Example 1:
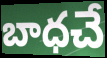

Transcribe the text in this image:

బాధచే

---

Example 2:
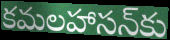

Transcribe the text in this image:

కమలహాసన్‌కు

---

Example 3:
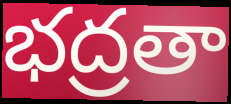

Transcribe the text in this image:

భద్రతా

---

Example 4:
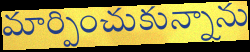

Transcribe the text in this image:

మార్పించుకున్నాను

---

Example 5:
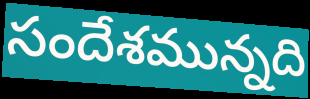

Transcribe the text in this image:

సందేశమున్నది